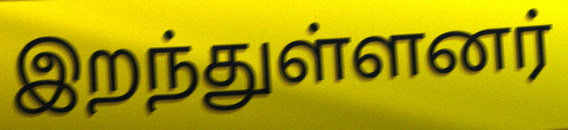
இறந்துள்ளனர்